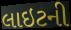
લાઇટની